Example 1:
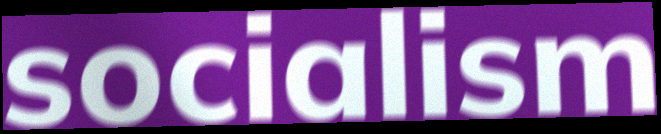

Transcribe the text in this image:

socialism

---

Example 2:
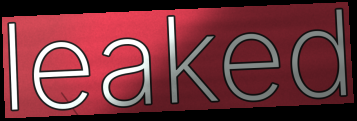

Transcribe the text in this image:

leaked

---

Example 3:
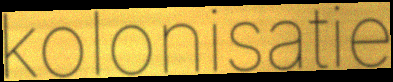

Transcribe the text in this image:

kolonisatie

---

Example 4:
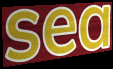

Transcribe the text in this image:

sea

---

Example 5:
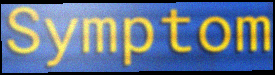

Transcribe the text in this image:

Symptom